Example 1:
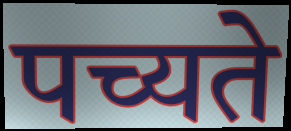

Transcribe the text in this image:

पच्यते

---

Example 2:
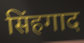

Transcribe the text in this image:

सिंहगाद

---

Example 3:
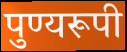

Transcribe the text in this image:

पुण्यरूपी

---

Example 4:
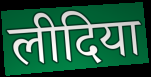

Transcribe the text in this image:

लीदिया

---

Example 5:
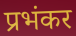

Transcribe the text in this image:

प्रभंकर